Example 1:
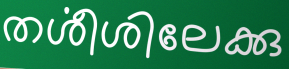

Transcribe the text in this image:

തൎശീശിലേക്കു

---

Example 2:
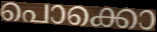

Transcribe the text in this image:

പൊക്കൊ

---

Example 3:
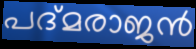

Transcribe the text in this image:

പദ്മരാജൻ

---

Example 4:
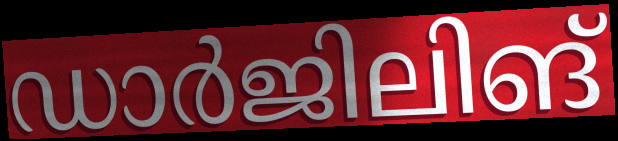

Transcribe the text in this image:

ഡാർജിലിങ്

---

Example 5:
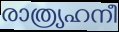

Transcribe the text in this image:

രാത്ര്യഹനീ